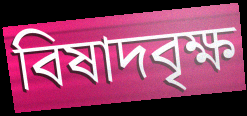
বিষাদবৃক্ষ